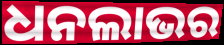
ଧନଲାଭର